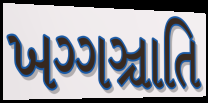
ખગ્ગઞ્ચાતિ